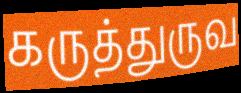
கருத்துருவ